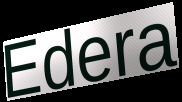
Edera